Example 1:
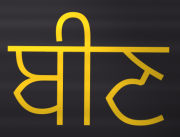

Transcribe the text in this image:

ਬੀਣ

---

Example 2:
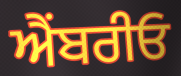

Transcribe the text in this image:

ਐਂਬਰੀਓ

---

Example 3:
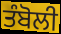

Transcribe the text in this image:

ਤੰਬੋਲੀ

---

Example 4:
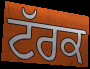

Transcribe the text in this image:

ਟੱਰਕ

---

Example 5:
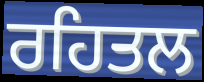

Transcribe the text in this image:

ਰਹਿਤਲ